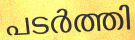
പടർത്തി